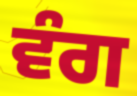
ਵੰਗ